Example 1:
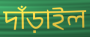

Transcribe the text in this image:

দাঁড়াইল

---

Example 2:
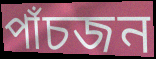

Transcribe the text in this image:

পাঁচজন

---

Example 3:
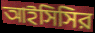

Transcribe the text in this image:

আইসিসির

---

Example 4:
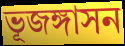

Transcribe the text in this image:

ভূজঙ্গাসন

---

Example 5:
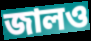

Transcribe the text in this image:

জালও